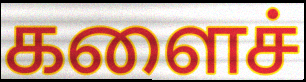
களைச்